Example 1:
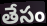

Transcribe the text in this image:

తేసం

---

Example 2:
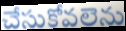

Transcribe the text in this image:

చేసుకోవలెను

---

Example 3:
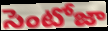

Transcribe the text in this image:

సెంటోజా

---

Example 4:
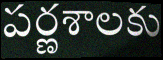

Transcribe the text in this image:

పర్ణశాలకు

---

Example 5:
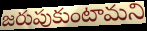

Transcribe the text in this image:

జరుపుకుంటామని